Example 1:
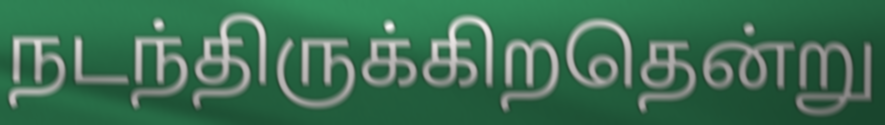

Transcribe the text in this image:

நடந்திருக்கிறதென்று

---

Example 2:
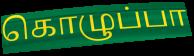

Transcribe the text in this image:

கொழுப்பா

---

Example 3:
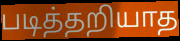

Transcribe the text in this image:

படித்தறியாத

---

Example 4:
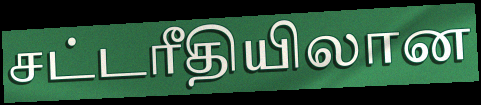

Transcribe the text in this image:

சட்டரீதியிலான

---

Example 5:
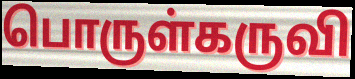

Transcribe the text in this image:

பொருள்கருவி